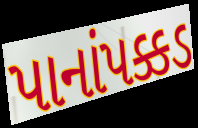
પાનાંપક્કડ